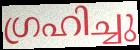
ഗ്രഹിച്ചു